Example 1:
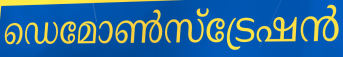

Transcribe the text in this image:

ഡെമോൺസ്ട്രേഷൻ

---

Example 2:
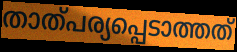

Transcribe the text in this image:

താത്പര്യപ്പെടാത്തത്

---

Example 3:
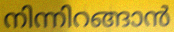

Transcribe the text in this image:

നിന്നിറങ്ങാൻ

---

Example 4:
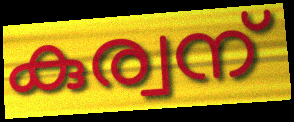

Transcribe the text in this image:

കുര്വന്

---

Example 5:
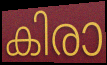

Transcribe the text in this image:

കിരാ